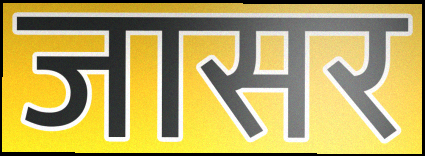
जासर